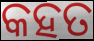
କହତ